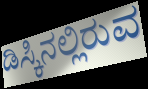
ಡಿಸ್ಕಿನಲ್ಲಿರುವ